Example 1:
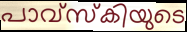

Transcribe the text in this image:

പാവ്സ്കിയുടെ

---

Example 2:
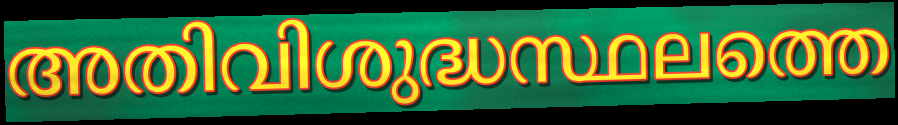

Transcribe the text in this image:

അതിവിശുദ്ധസ്ഥലത്തെ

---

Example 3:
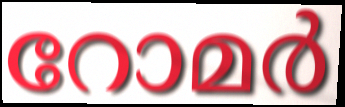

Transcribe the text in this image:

റോമർ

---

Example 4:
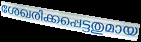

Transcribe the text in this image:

ശേഖരിക്കപ്പെട്ടതുമായ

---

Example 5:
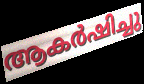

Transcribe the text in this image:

ആകർഷിച്ചു